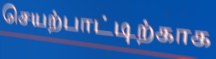
செயற்பாட்டிற்காக